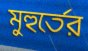
মুহুর্তের